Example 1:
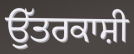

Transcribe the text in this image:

ਉੱਤਰਕਾਸ਼ੀ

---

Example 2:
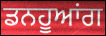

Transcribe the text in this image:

ਡਨਹੂਆਂਗ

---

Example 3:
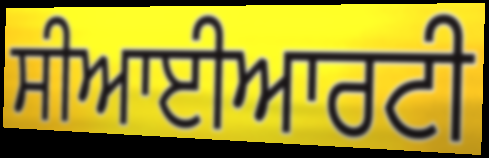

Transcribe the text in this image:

ਸੀਆਈਆਰਟੀ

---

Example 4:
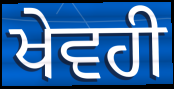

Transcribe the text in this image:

ਖੇਵਹੀ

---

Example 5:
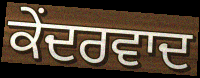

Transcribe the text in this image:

ਕੇਂਦਰਵਾਦ